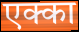
एक्का